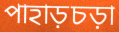
পাহাড়চড়া